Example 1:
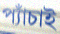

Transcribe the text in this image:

প্যাঁচাই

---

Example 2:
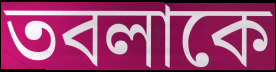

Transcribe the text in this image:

তবলাকে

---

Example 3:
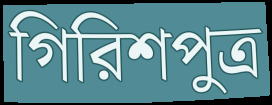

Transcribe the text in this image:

গিরিশপুত্র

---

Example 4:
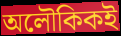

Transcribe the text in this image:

অলৌকিকই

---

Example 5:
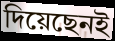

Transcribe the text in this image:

দিয়েছেনই